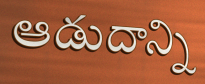
ఆడుదాన్ని